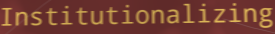
Institutionalizing